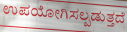
ಉಪಯೋಗಿಸಲ್ಪಡುತ್ತದೆ